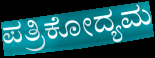
ಪತ್ರಿಕೋದ್ಯಮ